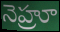
నెహ్రూ